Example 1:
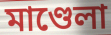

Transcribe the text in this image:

মাণ্ডেলা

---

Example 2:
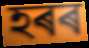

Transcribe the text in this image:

হৰৰ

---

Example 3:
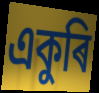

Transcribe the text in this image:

একুৰি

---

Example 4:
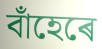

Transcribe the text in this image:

বাঁহেৰে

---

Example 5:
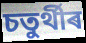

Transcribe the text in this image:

চতুৰ্থীৰ